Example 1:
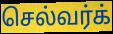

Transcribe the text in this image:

செல்வர்க்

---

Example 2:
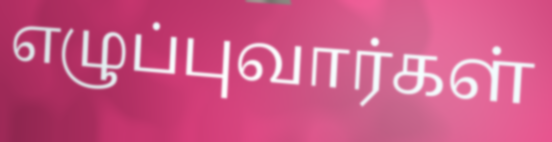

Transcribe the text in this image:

எழுப்புவார்கள்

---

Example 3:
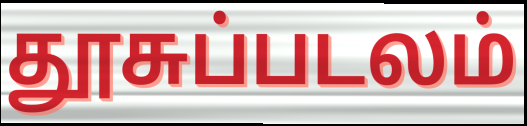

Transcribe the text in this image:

தூசுப்படலம்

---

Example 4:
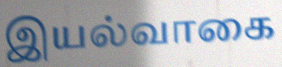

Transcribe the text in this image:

இயல்வாகை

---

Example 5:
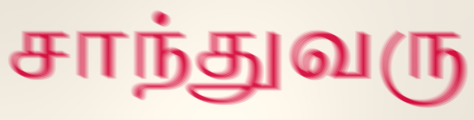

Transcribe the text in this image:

சாந்துவரு